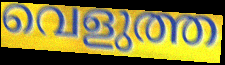
വെളുത്ത